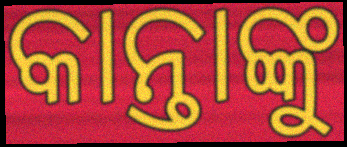
କାନ୍ତାଙ୍କୁ